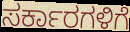
ಸರ್ಕಾರಗಳಿಗೆ